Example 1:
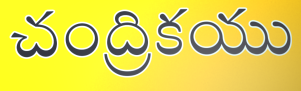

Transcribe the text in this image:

చంద్రికయు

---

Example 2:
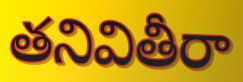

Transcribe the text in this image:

తనివితీరా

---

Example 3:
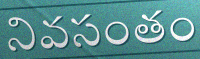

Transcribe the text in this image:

నివసంతం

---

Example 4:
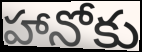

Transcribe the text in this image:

హానోకు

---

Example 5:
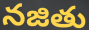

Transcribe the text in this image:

నజితు